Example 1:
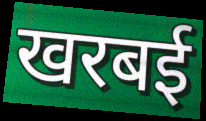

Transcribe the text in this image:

खरबई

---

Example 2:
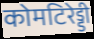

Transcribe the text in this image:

कोमटिरेड्डी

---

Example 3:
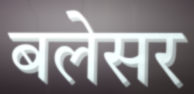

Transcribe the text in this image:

बलेसर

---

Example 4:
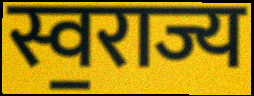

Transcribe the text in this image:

स्व॒राज्य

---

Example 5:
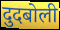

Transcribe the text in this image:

दुदबोली